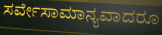
ಸರ್ವೇಸಾಮಾನ್ಯವಾದರೂ